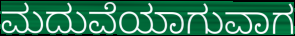
ಮದುವೆಯಾಗುವಾಗ